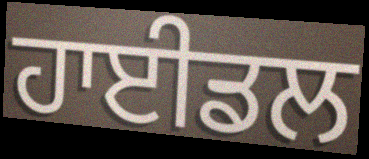
ਹਾਈਡਲ